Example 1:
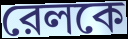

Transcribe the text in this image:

রেলকে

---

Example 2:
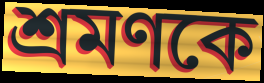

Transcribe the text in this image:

শ্রমণকে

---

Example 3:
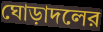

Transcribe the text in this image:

ঘোড়াদলের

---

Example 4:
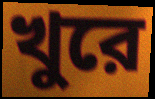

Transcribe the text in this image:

খুরে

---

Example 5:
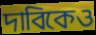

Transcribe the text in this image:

দাবিকেও